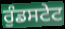
ਰੁੰਡਸਟੇਟ